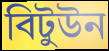
বিটুউন